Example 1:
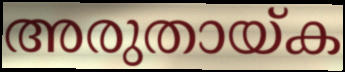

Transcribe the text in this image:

അരുതായ്ക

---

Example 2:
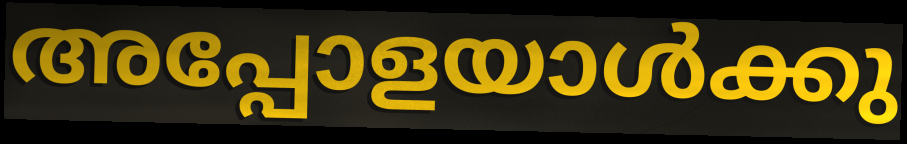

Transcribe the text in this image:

അപ്പോളയാൾക്കു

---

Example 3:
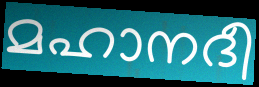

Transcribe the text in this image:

മഹാനദീ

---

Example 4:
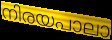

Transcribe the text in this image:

നിരയപാലാ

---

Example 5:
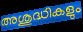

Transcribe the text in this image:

അശുദ്ധികളും